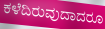
ಕಳೆದಿರುವುದಾದರೂ